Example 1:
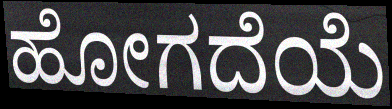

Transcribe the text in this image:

ಹೋಗದೆಯೆ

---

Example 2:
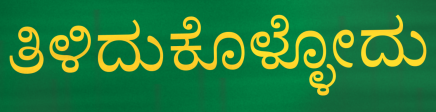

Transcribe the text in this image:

ತಿಳಿದುಕೊಳ್ಳೋದು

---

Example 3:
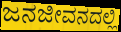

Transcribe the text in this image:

ಜನಜೀವನದಲ್ಲಿ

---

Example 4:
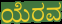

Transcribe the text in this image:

ಯೆರವ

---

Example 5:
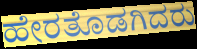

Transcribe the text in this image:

ಹೇರತೊಡಗಿದರು